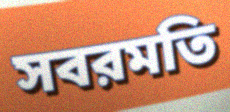
সবরমতি